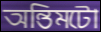
অন্তিমটো